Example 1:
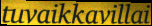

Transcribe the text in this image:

tuvaikkavillai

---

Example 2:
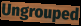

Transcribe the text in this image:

Ungrouped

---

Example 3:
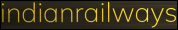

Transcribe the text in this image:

indianrailways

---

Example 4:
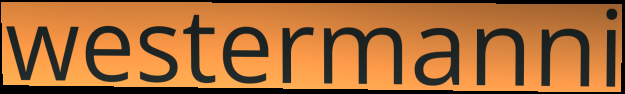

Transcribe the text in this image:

westermanni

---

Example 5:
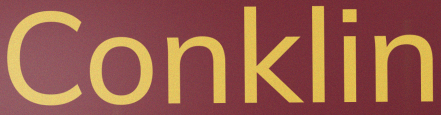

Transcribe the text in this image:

Conklin